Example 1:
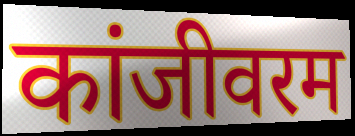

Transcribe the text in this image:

कांजीवरम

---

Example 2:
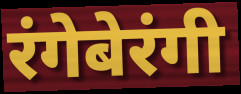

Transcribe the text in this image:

रंगेबेरंगी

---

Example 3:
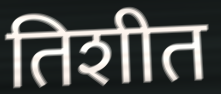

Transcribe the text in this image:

तिशीत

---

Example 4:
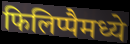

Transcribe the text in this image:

फिलिप्पैमध्ये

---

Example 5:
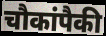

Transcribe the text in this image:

चौकांपैकी